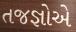
તજજ્ઞોએ